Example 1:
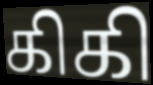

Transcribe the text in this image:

கிகி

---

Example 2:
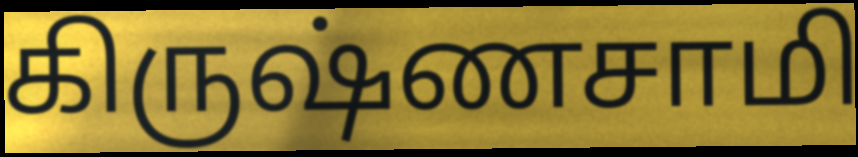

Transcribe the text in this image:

கிருஷ்ணசாமி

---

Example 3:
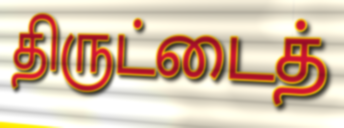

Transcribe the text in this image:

திருட்டைத்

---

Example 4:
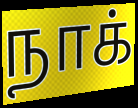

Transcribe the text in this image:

நாக்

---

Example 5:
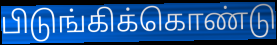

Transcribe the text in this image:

பிடுங்கிக்கொண்டு